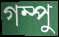
গম্পু